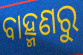
ବାହ୍ମଣରୁ